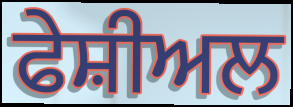
ਫੇਸ਼ੀਅਲ